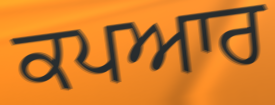
ਕਪਆਰ